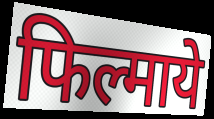
फिल्माये